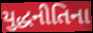
યુદ્ધનીતિના